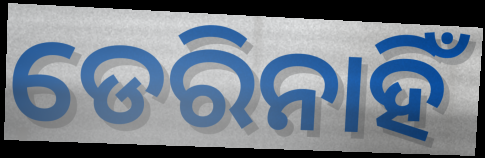
ଡେରିନାହିଁ